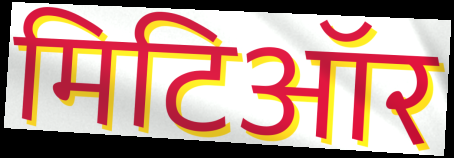
मिटिऑर